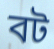
বট